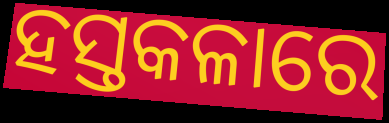
ହସ୍ତକଳାରେ